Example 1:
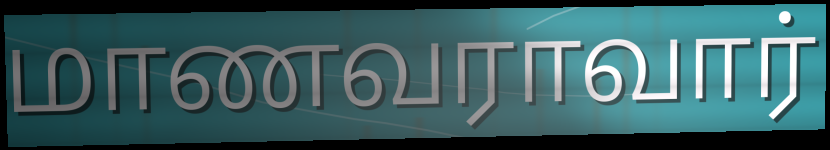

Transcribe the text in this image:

மாணவராவார்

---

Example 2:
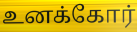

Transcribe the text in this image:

உனக்கோர்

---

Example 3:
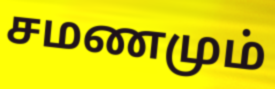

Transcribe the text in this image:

சமணமும்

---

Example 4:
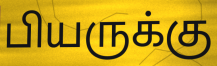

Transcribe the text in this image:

பியருக்கு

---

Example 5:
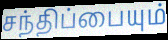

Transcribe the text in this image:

சந்திப்பையும்